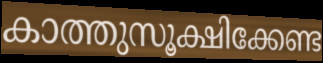
കാത്തുസൂക്ഷിക്കേണ്ട